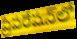
ప్రిపరేషన్‌లో